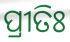
ପ୍ରୀତିଃ